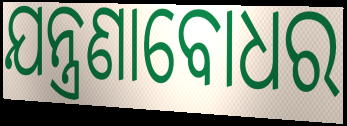
ଯନ୍ତ୍ରଣାବୋଧର